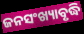
ଜନସଂଖ୍ୟାବୃଦ୍ଧି